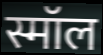
स्मॉल